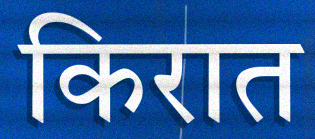
किरात